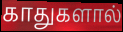
காதுகளால்